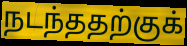
நடந்ததற்குக்